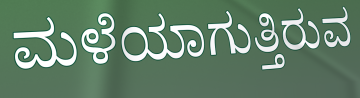
ಮಳೆಯಾಗುತ್ತಿರುವ